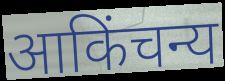
आकिंचन्य